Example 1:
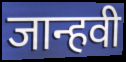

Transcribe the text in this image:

जान्‍हवी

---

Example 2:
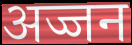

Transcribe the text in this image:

अज्जन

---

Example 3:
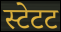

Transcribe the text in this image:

स्टेटट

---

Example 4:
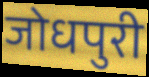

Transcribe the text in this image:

जोधपुरी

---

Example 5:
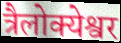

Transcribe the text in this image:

त्रैलोक्येश्वर